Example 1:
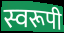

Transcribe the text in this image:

स्वरूपी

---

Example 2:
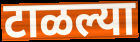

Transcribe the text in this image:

टाळल्या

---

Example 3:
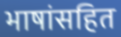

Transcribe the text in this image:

भाषांसहित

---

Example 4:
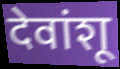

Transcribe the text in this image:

देवांशू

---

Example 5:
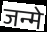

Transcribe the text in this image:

जन्मे